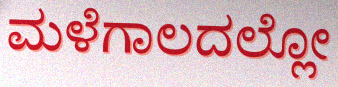
ಮಳೆಗಾಲದಲ್ಲೋ